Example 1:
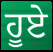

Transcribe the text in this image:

ਹੂਏ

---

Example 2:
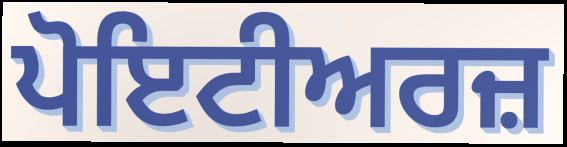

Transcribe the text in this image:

ਪੋਇਟੀਅਰਜ਼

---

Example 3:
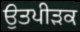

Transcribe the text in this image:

ਉਤਪੀੜਕ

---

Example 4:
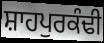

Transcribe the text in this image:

ਸ਼ਾਹਪੁਰਕੰਢੀ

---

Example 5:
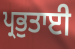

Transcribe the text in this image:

ਪ੍ਰਭੁਤਾਈ